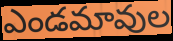
ఎండమావుల